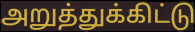
அறுத்துக்கிட்டு